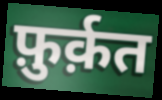
फ़ुर्क़त